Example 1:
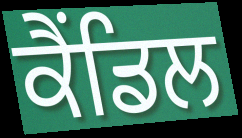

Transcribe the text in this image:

ਕੈਂਡਿਲ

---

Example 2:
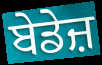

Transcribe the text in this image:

ਬੇਡੇਜ਼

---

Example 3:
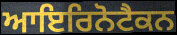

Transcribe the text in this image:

ਆਇਰਿਨੋਟੈਕਨ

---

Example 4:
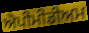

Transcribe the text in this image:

ਐਪੀਮੀਡੀਅਮ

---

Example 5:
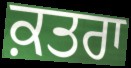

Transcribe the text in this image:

ਕ਼ਤਰਾ